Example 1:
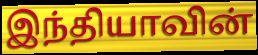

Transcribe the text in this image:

இந்தியாவின்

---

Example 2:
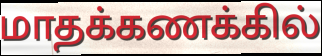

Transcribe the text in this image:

மாதக்கணக்கில்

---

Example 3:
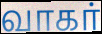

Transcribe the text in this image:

வாகர்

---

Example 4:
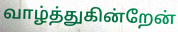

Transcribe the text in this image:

வாழ்த்துகின்றேன்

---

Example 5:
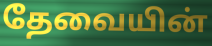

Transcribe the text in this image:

தேவையின்